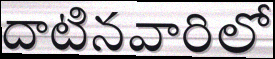
దాటినవారిలో